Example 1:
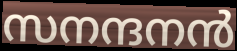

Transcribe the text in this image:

സനന്ദനൻ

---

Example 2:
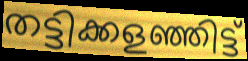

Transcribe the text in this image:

തട്ടിക്കളഞ്ഞിട്ട്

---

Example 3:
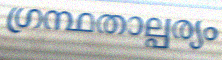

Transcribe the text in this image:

ഗ്രന്ഥതാല്പര്യം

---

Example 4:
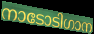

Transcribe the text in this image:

നാടോടിഗാന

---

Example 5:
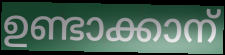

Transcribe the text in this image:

ഉണ്ടാക്കാന്